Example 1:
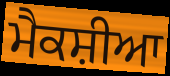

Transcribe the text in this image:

ਮੈਕਸ਼ੀਆ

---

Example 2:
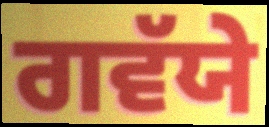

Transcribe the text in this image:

ਗਵੱਯੇ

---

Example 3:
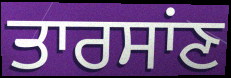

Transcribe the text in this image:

ਤਾਰਸਾਂਣ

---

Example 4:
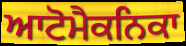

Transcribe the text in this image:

ਆਟੋਮੈਕਨਿਕਾ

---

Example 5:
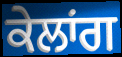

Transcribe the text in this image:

ਕੇਲਾਂਗ